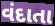
વંદાતા